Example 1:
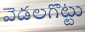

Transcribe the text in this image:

వెడలగొట్టు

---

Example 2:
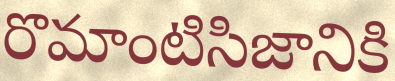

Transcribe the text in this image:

రొమాంటిసిజానికి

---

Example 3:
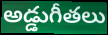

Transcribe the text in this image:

అడ్డుగీతలు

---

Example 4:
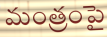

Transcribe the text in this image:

మంత్రంపై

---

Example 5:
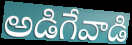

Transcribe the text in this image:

అడిగేవాడి